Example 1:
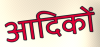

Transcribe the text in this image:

आदिकों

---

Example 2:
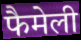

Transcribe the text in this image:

फैमेली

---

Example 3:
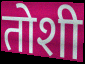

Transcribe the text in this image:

तोशी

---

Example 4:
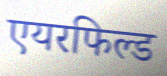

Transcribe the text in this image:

एयरफिल्ड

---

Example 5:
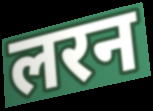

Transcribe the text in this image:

लरन